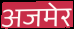
अजमेर